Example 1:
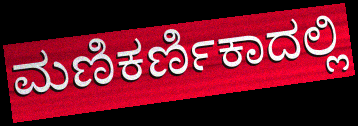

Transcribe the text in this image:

ಮಣಿಕರ್ಣಿಕಾದಲ್ಲಿ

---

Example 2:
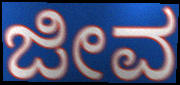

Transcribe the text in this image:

ಜೀವ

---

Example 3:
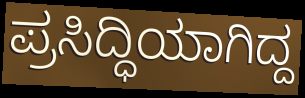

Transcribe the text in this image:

ಪ್ರಸಿದ್ಧಿಯಾಗಿದ್ದ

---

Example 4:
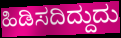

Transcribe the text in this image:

ಹಿಡಿಸದಿದ್ದುದು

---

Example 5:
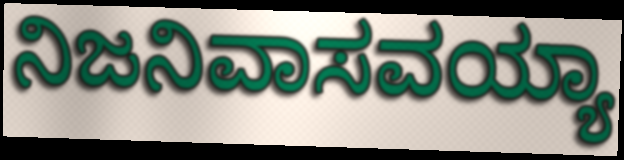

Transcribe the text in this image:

ನಿಜನಿವಾಸವಯ್ಯಾ